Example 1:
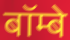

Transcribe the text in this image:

बॉम्‍बे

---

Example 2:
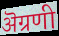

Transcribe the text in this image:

ऄग्रणी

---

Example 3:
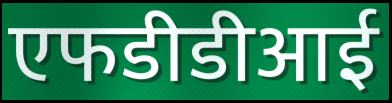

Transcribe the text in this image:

एफडीडीआई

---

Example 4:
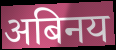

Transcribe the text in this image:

अबिनय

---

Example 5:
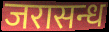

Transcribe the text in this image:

जरासन्ध